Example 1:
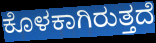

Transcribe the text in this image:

ಕೊಳಕಾಗಿರುತ್ತದೆ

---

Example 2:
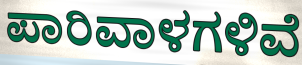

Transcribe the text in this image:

ಪಾರಿವಾಳಗಳಿವೆ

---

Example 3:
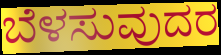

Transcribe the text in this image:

ಬೆಳಸುವುದರ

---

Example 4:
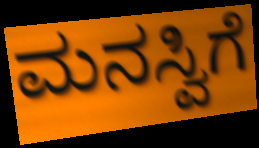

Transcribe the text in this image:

ಮನಸ್ವಿಗೆ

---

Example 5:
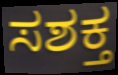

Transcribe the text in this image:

ಸಶಕ್ತ